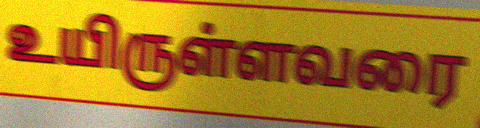
உயிருள்ளவரை